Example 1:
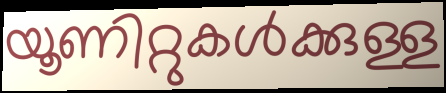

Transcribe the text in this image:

യൂണിറ്റുകൾക്കുള്ള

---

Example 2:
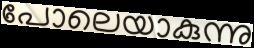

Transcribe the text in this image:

പോലെയാകുന്നു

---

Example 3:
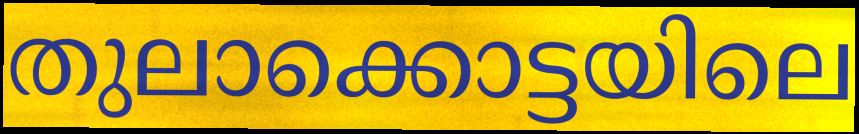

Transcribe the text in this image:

തുലാക്കൊട്ടയിലെ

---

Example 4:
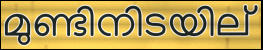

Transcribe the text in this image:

മുണ്ടിനിടയില്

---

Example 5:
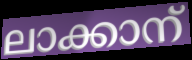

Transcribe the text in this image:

ലാക്കാന്